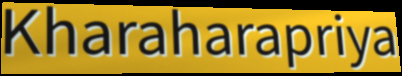
Kharaharapriya